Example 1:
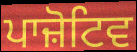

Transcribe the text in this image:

ਪਾਜ਼ੋਟਿਵ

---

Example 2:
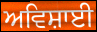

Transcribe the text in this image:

ਅਵਿਸ਼ਾਈ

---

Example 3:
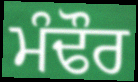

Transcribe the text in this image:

ਮੰਢੌਰ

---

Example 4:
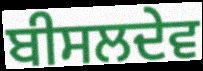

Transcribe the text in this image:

ਬੀਸਲਦੇਵ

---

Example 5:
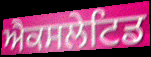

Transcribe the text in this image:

ਐਕਸਲੇਟਿਡ